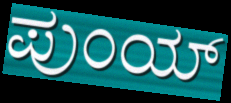
ಪುಂಯ್